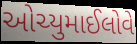
ઓચ્યુમાઈલોવે